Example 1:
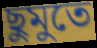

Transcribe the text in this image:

ছুমুতে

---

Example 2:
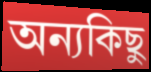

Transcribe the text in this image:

অন্যকিছু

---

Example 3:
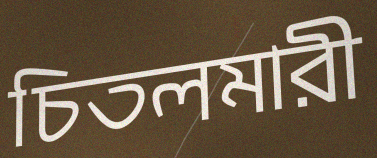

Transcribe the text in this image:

চিতলমারী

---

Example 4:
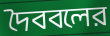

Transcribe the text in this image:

দৈববলের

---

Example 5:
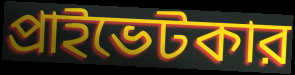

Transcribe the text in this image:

প্রাইভেটকার